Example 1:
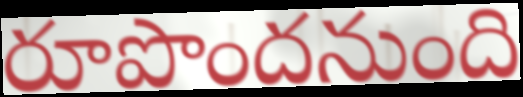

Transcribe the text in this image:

రూపొందనుంది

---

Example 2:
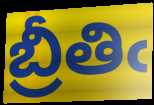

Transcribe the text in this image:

బ్రీతిఁ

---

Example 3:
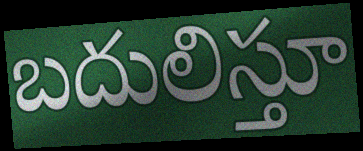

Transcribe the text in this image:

బదులిస్తూ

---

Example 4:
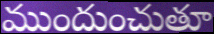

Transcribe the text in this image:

ముందుంచుతూ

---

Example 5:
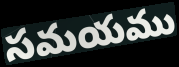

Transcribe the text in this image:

సమయము